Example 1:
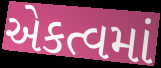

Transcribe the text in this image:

એકત્વમાં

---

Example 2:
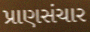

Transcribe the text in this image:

પ્રાણસંચાર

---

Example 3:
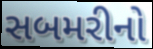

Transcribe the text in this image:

સબમરીનો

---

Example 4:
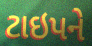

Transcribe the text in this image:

ટાઇપને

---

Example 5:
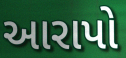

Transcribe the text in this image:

આરાપો